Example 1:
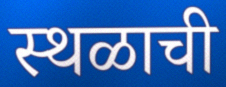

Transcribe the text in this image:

स्थळाची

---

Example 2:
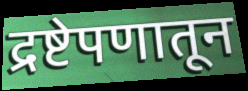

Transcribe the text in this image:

द्रष्टेपणातून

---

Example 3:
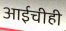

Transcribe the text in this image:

आईचीही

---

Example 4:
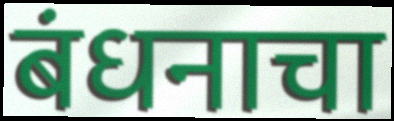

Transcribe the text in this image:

बंधनाचा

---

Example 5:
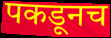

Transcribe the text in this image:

पकडूनच